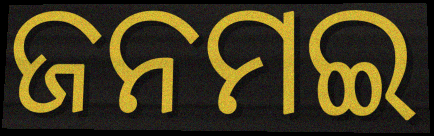
ଜନମଇ